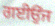
ਗਈਉਂਜ